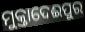
ମୁକ୍ତାଦେଈପୁର